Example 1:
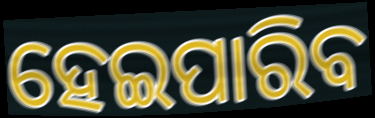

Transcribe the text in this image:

ହେଇପାରିବ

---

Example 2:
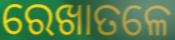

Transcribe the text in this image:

ରେଖାତଳେ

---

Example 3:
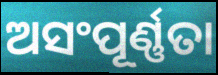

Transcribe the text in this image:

ଅସଂପୂର୍ଣ୍ଣତା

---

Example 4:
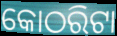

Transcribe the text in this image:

କୋଠରିଟା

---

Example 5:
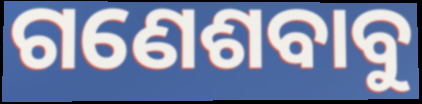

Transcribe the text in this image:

ଗଣେଶବାବୁ